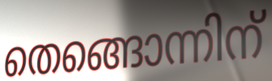
തെങ്ങൊന്നിന്